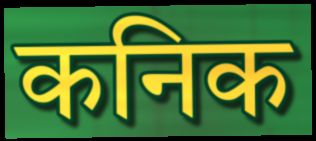
कनिक